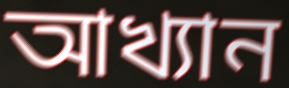
আখ্যান